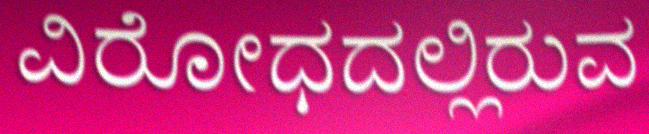
ವಿರೋಧದಲ್ಲಿರುವ